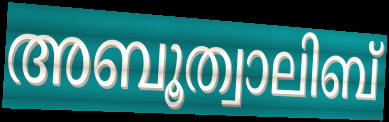
അബൂത്വാലിബ്